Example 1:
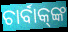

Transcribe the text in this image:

ଚାର୍ବାକ୍‌ଙ୍କ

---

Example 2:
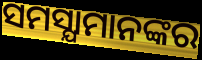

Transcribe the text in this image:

ସମସ୍ଯାମାନଙ୍କର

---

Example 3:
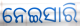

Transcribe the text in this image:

ନେଇସାରି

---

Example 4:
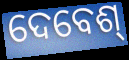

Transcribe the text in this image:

ଦେବେଶ୍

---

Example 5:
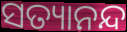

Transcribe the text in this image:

ସତ୍ୟାନନ୍ଦ